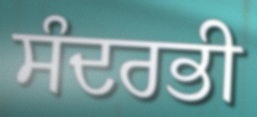
ਸੰਦਰਭੀ